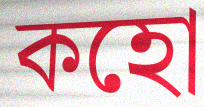
কহো